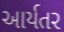
આર્યતર